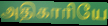
அதிகாரியே